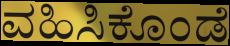
ವಹಿಸಿಕೊಂಡೆ